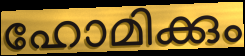
ഹോമിക്കും